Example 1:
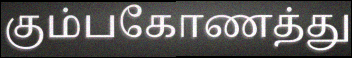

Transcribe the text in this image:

கும்பகோணத்து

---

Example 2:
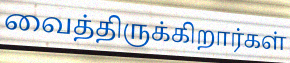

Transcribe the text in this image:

வைத்திருக்கிறார்கள்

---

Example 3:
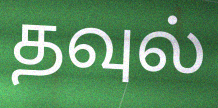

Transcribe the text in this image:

தவுல்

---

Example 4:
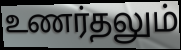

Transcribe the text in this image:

உணர்தலும்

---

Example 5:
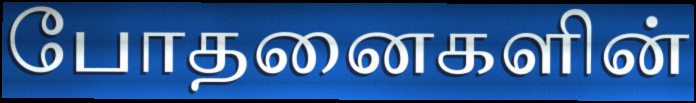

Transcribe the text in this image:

போதனைகளின்